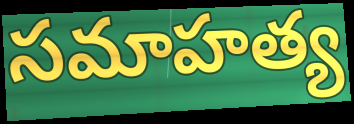
సమాహత్య